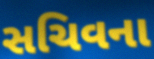
સચિવના